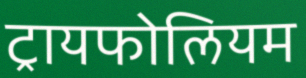
ट्रायफोलियम